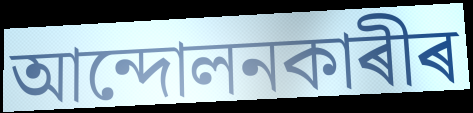
আন্দোলনকাৰীৰ